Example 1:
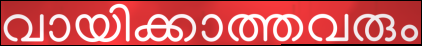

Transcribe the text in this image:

വായിക്കാത്തവരും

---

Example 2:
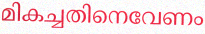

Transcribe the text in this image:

മികച്ചതിനെവേണം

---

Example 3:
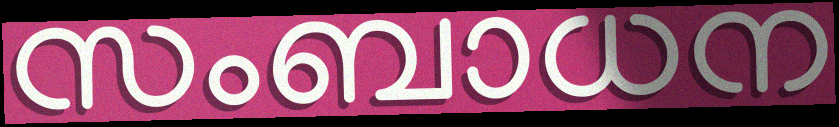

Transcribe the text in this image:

സംബാധന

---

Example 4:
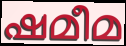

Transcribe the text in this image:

ഷമീമ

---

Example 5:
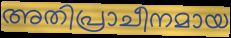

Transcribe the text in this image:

അതിപ്രാചീനമായ